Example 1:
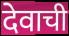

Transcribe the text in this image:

देवाची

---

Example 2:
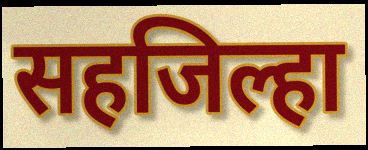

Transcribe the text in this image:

सहजिल्हा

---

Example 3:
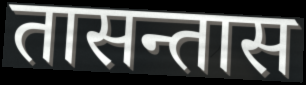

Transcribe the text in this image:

तासन्तास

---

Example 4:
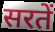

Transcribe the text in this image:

सरतें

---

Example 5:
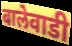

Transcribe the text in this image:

बालेवाडी